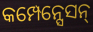
କମ୍ପେନ୍ସେସନ୍